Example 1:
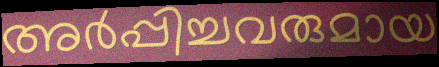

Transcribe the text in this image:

അർപ്പിച്ചവരുമായ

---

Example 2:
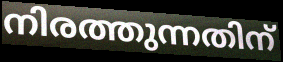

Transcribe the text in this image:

നിരത്തുന്നതിന്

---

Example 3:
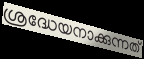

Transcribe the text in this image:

ശ്രദ്ധേയനാക്കുന്നത്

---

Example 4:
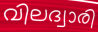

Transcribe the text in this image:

വിലദ്വാരി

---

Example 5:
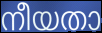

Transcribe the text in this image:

നീയതാ